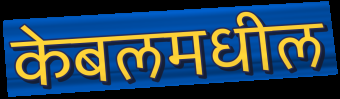
केबलमधील